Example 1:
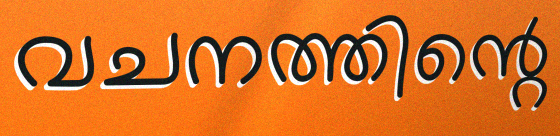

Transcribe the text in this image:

വചനത്തിന്റെ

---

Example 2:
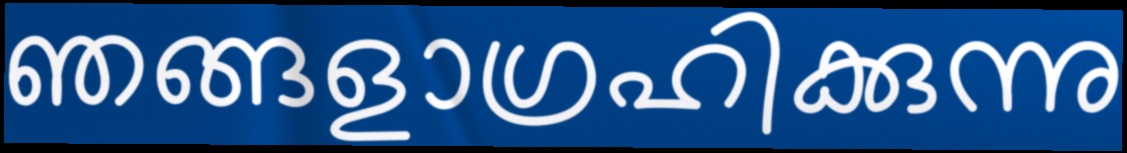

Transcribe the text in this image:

ഞങ്ങളാഗ്രഹിക്കുന്നു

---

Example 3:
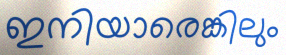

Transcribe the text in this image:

ഇനിയാരെങ്കിലും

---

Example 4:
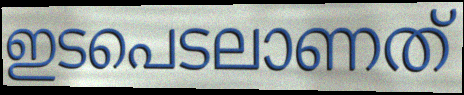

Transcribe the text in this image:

ഇടപെടലാണത്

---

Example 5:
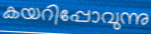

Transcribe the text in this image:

കയറിപ്പോവുന്നു